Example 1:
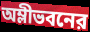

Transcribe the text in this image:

অম্লীভবনের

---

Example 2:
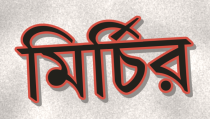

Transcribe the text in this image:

মির্চির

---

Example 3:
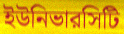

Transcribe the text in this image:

ইউনিভারসিটি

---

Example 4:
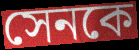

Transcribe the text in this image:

সেনকে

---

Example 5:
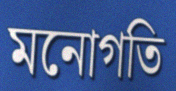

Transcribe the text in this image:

মনোগতি